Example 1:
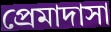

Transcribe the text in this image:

প্রেমাদাসা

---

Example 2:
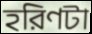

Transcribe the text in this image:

হরিণটা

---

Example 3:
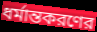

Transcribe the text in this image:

ধর্মান্তকরণের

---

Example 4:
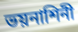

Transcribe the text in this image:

ভয়নাশিনী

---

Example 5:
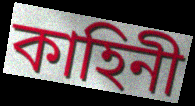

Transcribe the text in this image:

কাহিনী